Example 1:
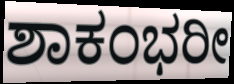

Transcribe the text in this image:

ಶಾಕಂಭರೀ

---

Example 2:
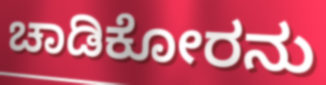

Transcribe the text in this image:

ಚಾಡಿಕೋರನು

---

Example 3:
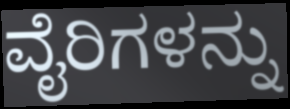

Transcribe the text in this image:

ವೈರಿಗಳನ್ನು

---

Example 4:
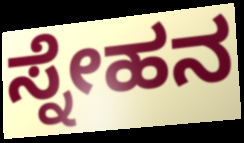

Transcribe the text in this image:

ಸ್ನೇಹನ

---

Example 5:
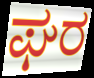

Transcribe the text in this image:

ಘರ